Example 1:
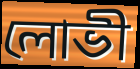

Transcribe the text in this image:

লোভী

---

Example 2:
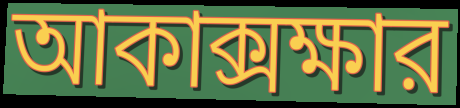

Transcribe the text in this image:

আকাক্সক্ষার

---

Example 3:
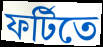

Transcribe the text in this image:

ফর্টিতে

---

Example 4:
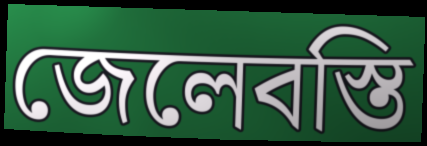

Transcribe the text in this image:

জেলেবস্তি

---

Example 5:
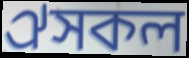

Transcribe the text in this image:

ঐসকল